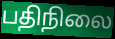
பதிநிலை